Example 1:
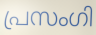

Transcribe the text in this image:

പ്രസംഗി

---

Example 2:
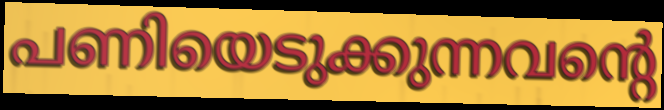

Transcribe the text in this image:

പണിയെടുക്കുന്നവന്റെ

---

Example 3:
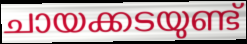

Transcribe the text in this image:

ചായക്കടയുണ്ട്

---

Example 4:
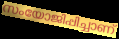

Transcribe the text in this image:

സംയോജിപ്പിച്ചാണ്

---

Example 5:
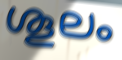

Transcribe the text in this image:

ശൂലം